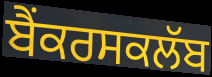
ਬੈਂਕਰਸਕਲੱਬ